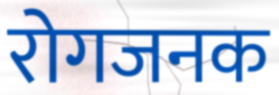
रोगजनक